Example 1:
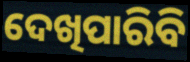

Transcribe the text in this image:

ଦେଖିପାରିବି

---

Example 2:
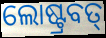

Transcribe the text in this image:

ଲୋଷ୍ଟ୍ରବତ୍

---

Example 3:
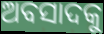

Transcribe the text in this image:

ଅବସାଦକୁ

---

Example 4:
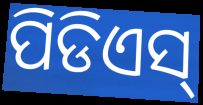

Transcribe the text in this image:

ପିଡିଏସ୍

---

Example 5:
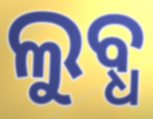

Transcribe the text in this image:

ଲୁବ୍ଧ